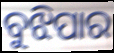
ବୁଝିପାର